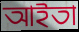
আইতা